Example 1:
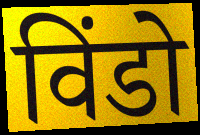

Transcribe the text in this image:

विंडो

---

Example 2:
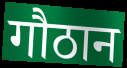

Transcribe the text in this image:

गौठान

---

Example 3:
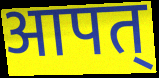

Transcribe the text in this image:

आपत्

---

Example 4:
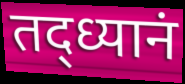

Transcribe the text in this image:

तद्ध्यानं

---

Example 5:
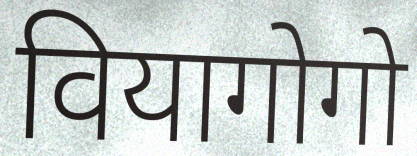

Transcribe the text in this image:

वियागोगो